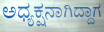
ಅಧ್ಯಕ್ಷನಾಗಿದ್ದಾಗ